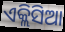
ଏକ୍ଲିସିଆ